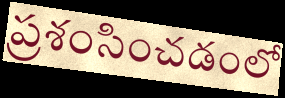
ప్రశంసించడంలో